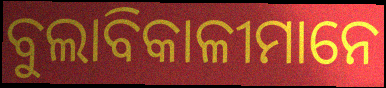
ବୁଲାବିକାଳୀମାନେ